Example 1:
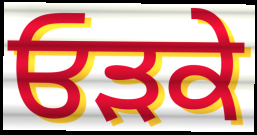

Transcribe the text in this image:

ਓੜਕੇ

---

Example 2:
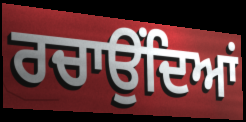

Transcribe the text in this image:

ਰਚਾਉਂਦਿਆਂ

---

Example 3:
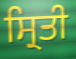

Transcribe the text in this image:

ਸ੍ਰਿਤੀ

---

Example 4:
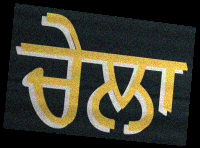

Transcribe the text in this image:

ਚੇਲਾ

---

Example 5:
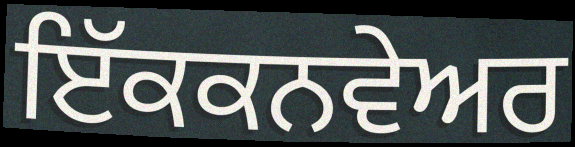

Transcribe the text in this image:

ਇੱਕਕਨਵੇਅਰ